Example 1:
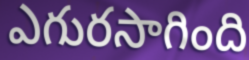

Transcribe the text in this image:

ఎగురసాగింది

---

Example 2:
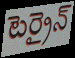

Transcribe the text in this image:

టెర్రైన్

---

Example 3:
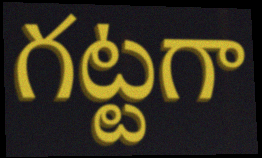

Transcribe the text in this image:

గట్టగా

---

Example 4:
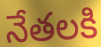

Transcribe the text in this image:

నేతలకి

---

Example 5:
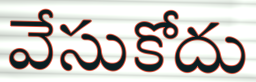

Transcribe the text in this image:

వేసుకోదు